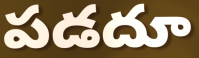
పడదూ